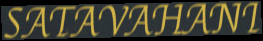
SATAVAHANI